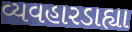
વ્યવહારડાહ્યા